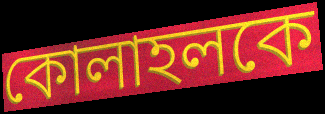
কোলাহলকে